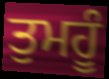
ਤੁਮਹੂੰ